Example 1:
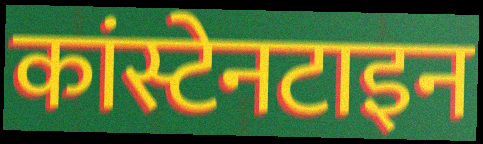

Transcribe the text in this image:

कांस्टेनटाइन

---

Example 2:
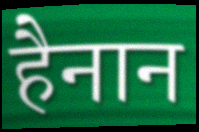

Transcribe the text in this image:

हैनान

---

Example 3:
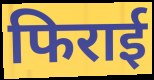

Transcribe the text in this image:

फिराई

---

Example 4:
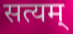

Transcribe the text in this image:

सत्यम्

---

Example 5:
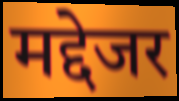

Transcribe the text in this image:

मद्देजर